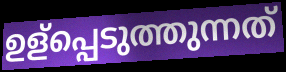
ഉള്പ്പെടുത്തുന്നത്